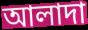
আলাদা